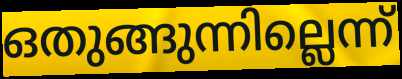
ഒതുങ്ങുന്നില്ലെന്ന്